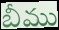
బీము